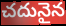
చదునైన